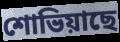
শোভিয়াছে